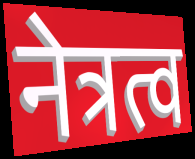
नेत्रत्व